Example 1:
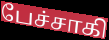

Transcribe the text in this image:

பேச்சாகி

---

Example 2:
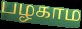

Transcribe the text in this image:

பழகாம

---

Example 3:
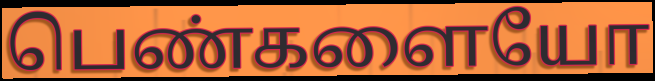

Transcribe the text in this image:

பெண்களையோ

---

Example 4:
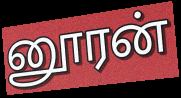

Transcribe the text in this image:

னூரன்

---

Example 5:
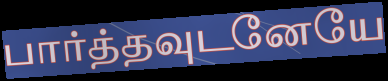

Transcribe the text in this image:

பார்த்தவுடனேயே